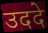
उददे